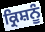
ਕ੍ਰਿਸ਼ਨੂੰ